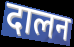
दालन